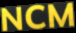
NCM